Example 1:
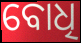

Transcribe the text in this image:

ବୋଧି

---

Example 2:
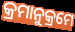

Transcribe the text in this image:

କ୍ରମାନୁକ୍ରମେ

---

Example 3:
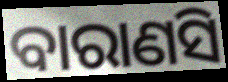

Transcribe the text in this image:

ବାରାଣସି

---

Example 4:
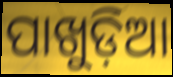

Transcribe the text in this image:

ପାଖୁଡ଼ିଆ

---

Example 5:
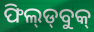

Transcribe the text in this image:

ଫିଲ୍‍ଡ୍‍ବୁକ୍